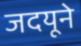
जदयूने